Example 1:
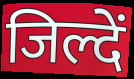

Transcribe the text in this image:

जिल्दें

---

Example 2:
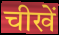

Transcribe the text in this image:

चीखें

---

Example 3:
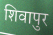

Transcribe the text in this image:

शिवापुर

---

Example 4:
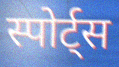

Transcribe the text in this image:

स्पोर्ट्स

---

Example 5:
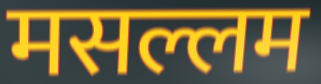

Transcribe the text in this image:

मसल्लम